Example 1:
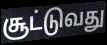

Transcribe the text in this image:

சூட்டுவது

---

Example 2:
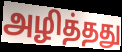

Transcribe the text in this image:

அழித்தது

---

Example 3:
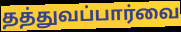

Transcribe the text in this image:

தத்துவப்பார்வை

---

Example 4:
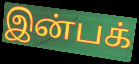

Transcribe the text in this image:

இன்பக்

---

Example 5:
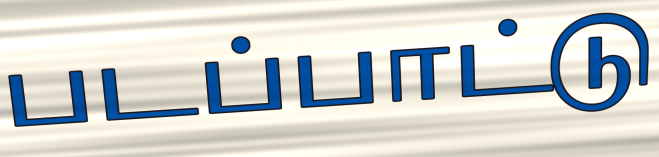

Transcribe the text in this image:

படப்பாட்டு